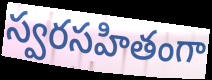
స్వరసహితంగా